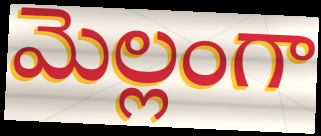
మెల్లంగా